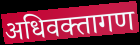
अधिवक्तागण